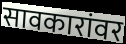
सावकारांवर